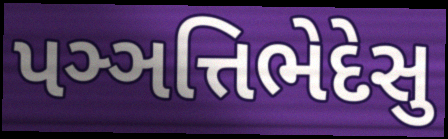
પઞ્ઞત્તિભેદેસુ